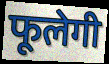
फूलेगी